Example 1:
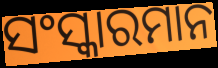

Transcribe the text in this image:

ସଂସ୍କାରମାନ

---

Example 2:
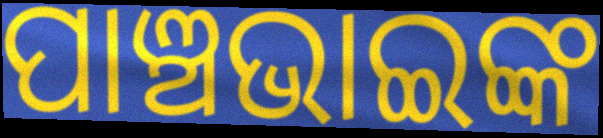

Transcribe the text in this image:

ପାଞ୍ଚଭାଇଙ୍କ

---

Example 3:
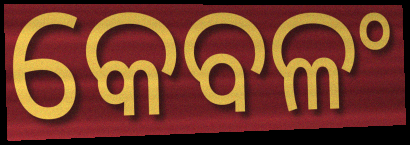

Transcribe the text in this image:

କେବଳଂ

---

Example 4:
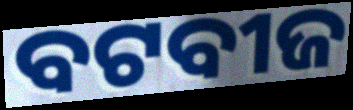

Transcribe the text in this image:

ବଟବୀଜ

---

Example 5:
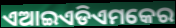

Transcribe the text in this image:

ଏଆଇଏଡିଏମକେର